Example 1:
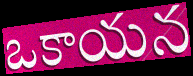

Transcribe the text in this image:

ఒకాయన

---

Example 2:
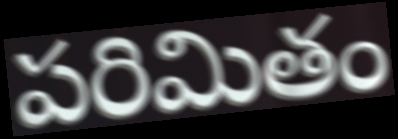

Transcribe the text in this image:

పరిమితం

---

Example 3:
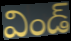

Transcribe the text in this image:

విండ్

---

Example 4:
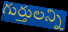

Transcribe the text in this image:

గుర్తులన్ని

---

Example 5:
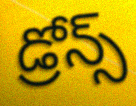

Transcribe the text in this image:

డ్రోన్స్